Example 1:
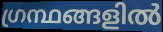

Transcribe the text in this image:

ഗ്രന്ഥങ്ങളിൽ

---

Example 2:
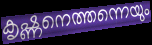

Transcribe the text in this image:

കൃഷ്ണനെത്തന്നെയും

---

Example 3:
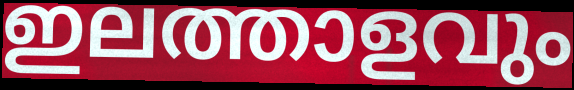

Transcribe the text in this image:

ഇലത്താളവും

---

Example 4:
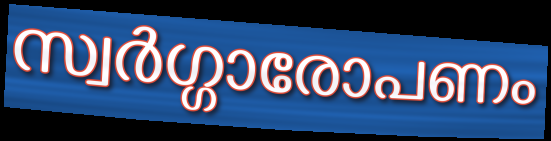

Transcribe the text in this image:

സ്വർഗ്ഗാരോപണം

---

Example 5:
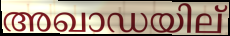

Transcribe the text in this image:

അഖാഡയില്